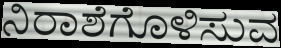
ನಿರಾಶೆಗೊಳಿಸುವ